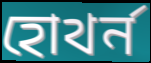
হোথর্ন